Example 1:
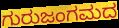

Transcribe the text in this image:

ಗುರುಜಂಗಮದ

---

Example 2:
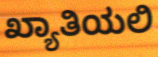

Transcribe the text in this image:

ಖ್ಯಾತಿಯಲಿ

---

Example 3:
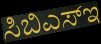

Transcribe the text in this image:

ಸಿಬಿಎಸ್ಇ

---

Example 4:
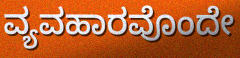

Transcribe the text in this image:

ವ್ಯವಹಾರವೊಂದೇ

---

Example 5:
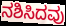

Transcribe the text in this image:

ನಶಿಸಿದವು